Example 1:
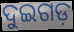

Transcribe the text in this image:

ଦୁଇଗଡ଼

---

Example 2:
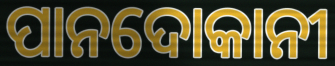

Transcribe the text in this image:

ପାନଦୋକାନୀ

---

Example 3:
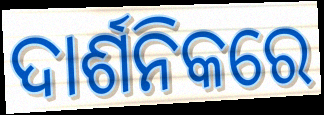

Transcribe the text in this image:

ଦାର୍ଶନିକରେ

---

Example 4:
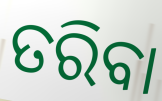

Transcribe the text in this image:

ତରିବା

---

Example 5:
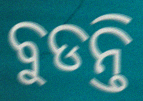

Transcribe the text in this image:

ବୁଡନ୍ତି